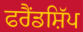
ਫਰੈਂਡਸ਼ਿੱਪ